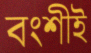
বংশীই